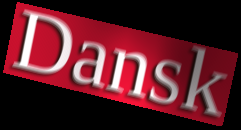
Dansk